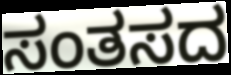
ಸಂತಸದ